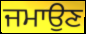
ਜਮਾਉਣ